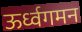
ऊर्ध्वगमन